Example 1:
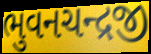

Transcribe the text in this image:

ભુવનચન્દ્રજી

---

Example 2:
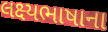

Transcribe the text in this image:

લક્ષ્યભાષાના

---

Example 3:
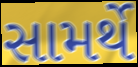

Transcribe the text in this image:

સામર્થે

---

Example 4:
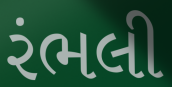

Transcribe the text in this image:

રંભલી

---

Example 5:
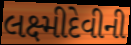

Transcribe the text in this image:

લક્ષ્મીદેવીની